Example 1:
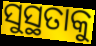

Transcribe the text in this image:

ସୁସ୍ଥତାକୁ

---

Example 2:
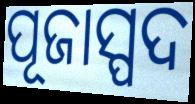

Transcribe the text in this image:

ପୂଜାସ୍ପଦ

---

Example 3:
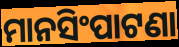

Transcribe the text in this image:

ମାନସିଂପାଟଣା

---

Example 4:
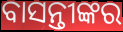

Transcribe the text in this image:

ବାସନ୍ତୀଙ୍କର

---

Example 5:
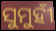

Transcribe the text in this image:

ସୁମୁହୀଁ